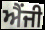
ਐਂਜੀ